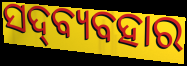
ସଦ୍‍ବ୍ୟବହାର